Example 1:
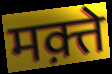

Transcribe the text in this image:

मक़्ते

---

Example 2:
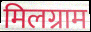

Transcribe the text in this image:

मिलग्राम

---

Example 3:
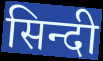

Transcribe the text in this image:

सिन्दी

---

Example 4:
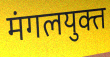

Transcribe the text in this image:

मंगलयुक्त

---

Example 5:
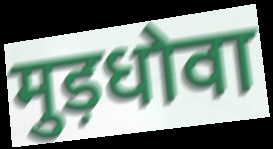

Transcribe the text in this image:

मुड़धोवा